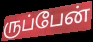
ருப்பேன்